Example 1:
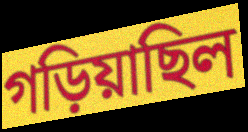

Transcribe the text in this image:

গড়িয়াছিল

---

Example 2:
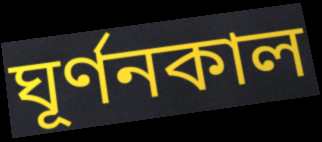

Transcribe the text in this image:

ঘূর্ণনকাল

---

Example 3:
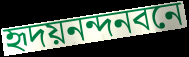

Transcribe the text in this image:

হৃদয়নন্দনবনে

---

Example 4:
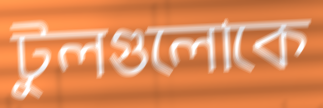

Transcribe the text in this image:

টুলগুলোকে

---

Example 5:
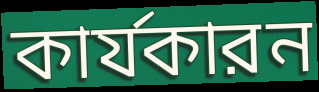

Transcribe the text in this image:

কার্যকারন